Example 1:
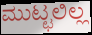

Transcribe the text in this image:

ಮುಟ್ಟಲಿಲ್ಲ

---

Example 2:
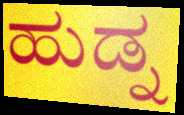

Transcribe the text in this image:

ಹುಡ್ನ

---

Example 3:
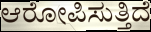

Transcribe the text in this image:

ಆರೋಪಿಸುತ್ತಿದೆ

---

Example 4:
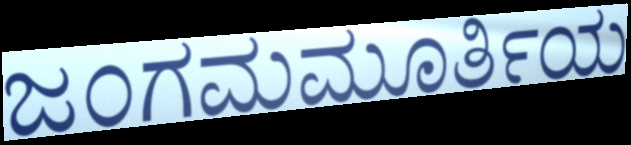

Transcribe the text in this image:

ಜಂಗಮಮೂರ್ತಿಯ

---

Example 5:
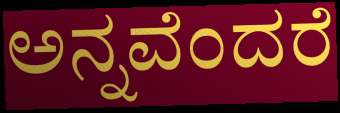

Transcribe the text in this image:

ಅನ್ನವೆಂದರೆ